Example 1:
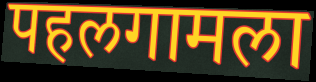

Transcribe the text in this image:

पहलगामला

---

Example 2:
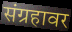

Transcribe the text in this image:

संग्रहावर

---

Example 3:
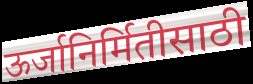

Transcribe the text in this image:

ऊर्जानिर्मितीसाठी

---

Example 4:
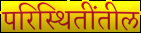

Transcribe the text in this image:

परिस्थितींतील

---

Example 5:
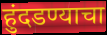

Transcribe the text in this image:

हुंदडण्याचा